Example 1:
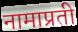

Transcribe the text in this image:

नामाप्रती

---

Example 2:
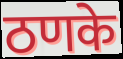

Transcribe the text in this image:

ठणके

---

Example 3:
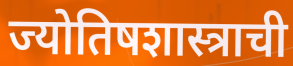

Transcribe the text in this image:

ज्योतिषशास्त्राची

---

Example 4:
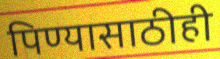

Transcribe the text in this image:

पिण्यासाठीही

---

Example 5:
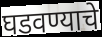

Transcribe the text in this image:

घडवण्याचे